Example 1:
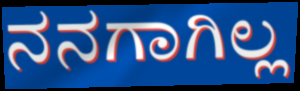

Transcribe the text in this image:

ನನಗಾಗಿಲ್ಲ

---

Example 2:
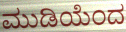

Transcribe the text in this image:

ಮುಡಿಯೆಂದ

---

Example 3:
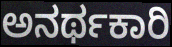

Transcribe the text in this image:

ಅನರ್ಥಕಾರಿ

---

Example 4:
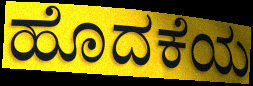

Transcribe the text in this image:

ಹೊದಕೆಯ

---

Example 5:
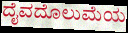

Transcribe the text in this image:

ದೈವದೊಲುಮೆಯ